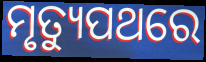
ମୃତ୍ୟୁପଥରେ